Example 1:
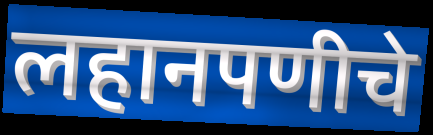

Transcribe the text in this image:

लहानपणीचे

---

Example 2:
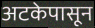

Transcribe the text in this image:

अटकेपासून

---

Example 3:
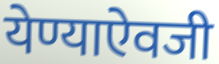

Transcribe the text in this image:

येण्याऐवजी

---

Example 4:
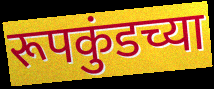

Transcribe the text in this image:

रूपकुंडच्या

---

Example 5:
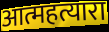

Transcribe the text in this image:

आत्महत्यारा